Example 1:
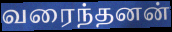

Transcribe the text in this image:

வரைந்தனன்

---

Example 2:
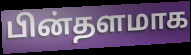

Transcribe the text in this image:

பின்தளமாக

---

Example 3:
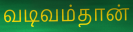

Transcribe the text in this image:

வடிவம்தான்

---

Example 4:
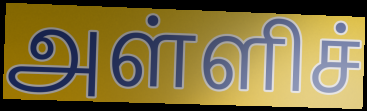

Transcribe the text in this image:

அள்ளிச்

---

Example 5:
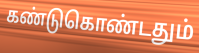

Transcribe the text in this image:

கண்டுகொண்டதும்